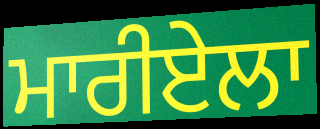
ਮਾਰੀਏਲਾ